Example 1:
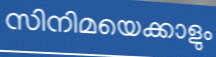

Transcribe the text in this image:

സിനിമയെക്കാളും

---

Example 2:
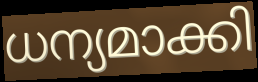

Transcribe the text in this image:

ധന്യമാക്കി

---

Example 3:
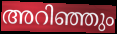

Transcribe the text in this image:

അറിഞ്ഞും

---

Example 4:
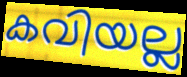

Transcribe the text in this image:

കവിയല്ല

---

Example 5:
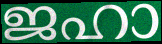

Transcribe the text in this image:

ജഹാ